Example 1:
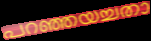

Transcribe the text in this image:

പറഞ്ഞയച്ചതാ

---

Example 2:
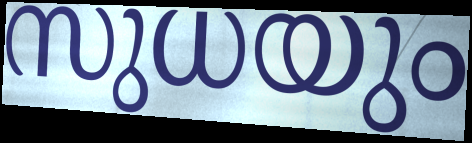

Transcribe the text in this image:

സുധയും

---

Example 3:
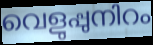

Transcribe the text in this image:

വെളുപ്പുനിറം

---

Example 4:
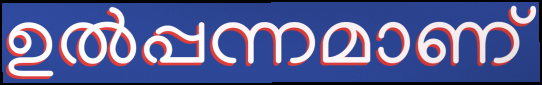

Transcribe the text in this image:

ഉൽപ്പന്നമാണ്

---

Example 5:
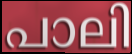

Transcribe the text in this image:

പാലി